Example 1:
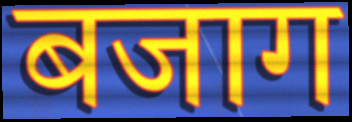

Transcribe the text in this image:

बजाग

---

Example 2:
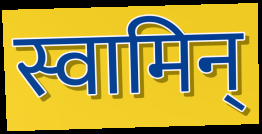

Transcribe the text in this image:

स्वामिन्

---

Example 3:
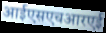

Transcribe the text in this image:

आईएसएचआरएई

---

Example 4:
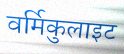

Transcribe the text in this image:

वर्मिकुलाइट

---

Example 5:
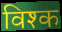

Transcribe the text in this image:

विश्क